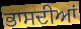
ਭਾਸਦੀਆਂ